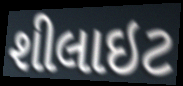
શીલાઇટ